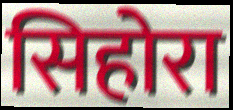
सिहोरा